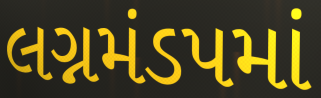
લગ્નમંડપમાં